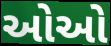
ઓઓ